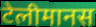
टेलीमानस